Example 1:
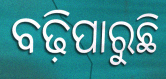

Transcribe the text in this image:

ବଢ଼ିପାରୁଛି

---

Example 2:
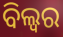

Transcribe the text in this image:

ବିଲ୍ୱର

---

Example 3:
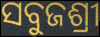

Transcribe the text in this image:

ସବୁଜଶ୍ରୀ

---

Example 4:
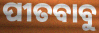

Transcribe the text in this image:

ପୀତବାବୁ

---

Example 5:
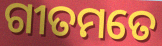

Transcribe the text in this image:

ଗୀତମତେ